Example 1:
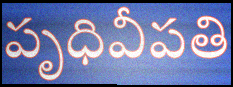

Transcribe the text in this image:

పృధివీపతి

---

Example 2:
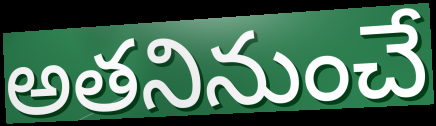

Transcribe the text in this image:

అతనినుంచే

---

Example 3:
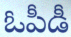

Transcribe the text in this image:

ఓపీడీ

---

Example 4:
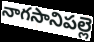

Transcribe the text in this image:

నాగసానిపల్లె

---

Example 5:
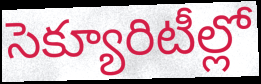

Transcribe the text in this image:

సెక్యూరిటీల్లో